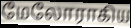
மேலோராகிய